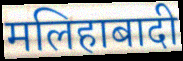
मलिहाबादी